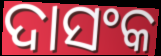
ଦାସଂକ